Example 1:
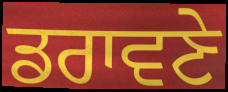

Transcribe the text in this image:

ਡਰਾਵਣੇ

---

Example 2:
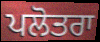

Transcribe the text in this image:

ਪਲੋਤਰਾ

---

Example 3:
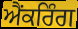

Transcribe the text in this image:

ਐਂਕਰਿੰਗ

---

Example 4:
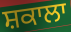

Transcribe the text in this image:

ਸ਼ਕਾਲਾ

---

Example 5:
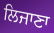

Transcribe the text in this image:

ਲਿਜਾਣਾ